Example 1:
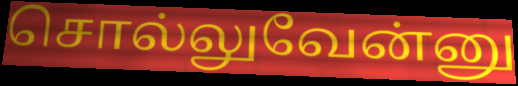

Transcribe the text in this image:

சொல்லுவேன்னு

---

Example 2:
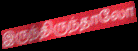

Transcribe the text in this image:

இருந்திருந்தாலோ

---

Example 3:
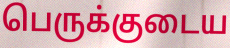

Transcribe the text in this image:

பெருக்குடைய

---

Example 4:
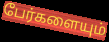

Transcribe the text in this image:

பேர்களையும்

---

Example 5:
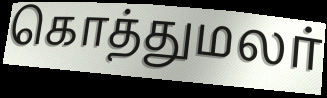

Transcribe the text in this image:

கொத்துமலர்